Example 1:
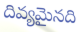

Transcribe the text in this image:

దివ్యమైనది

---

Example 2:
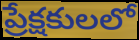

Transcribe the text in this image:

ప్రేక్షకులలో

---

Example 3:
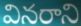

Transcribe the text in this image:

వినరాని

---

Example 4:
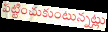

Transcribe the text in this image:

పట్టించుకుంటున్నట్లు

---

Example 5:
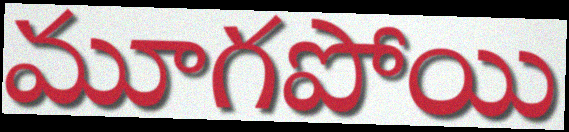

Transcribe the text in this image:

మూగపోయి